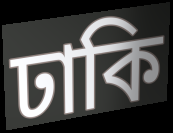
ঢাকি